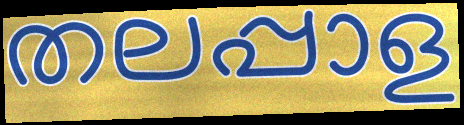
തലപ്പാള